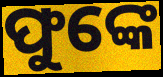
ଫୁଙ୍କେ